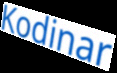
Kodinar